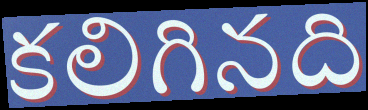
కలిగినది